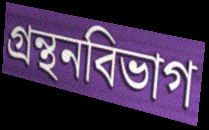
গ্রন্থনবিভাগ